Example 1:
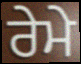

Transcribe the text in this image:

ਰੇਮੇ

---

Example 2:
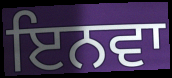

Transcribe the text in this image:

ਇਨਵਾ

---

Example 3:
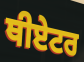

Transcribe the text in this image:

ਥੀਏਟਰ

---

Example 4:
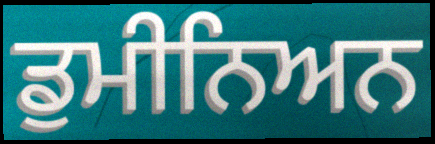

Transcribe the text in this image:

ਡੁਮੀਨਿਅਨ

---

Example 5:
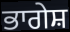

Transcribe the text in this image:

ਭਾਗੇਸ਼